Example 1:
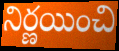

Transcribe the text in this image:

నిర్ణయించి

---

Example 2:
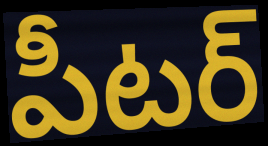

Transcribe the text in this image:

పీటర్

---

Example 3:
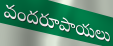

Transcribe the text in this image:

వందరూపాయలు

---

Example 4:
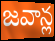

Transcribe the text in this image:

జవాన్ల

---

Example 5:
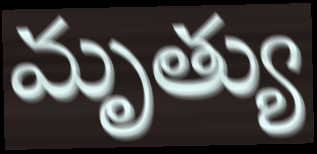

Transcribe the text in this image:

మృత్యు